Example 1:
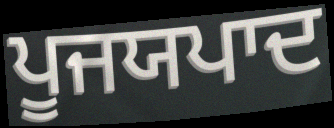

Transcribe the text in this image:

ਪੂਜਯਪਾਦ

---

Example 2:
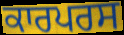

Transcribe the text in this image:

ਕਾਰਪਰਸ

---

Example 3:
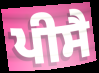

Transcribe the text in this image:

ਪੀਸੈ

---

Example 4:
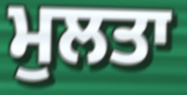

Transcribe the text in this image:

ਮੁਲਤਾ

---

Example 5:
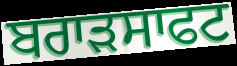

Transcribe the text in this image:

ਬਰਾੜਸਾਫਟ